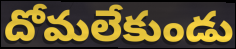
దోమలేకుండు